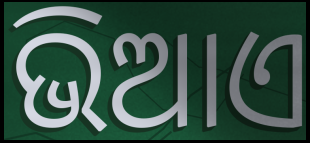
ଭିଆଏ